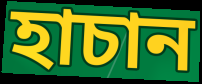
হাচান